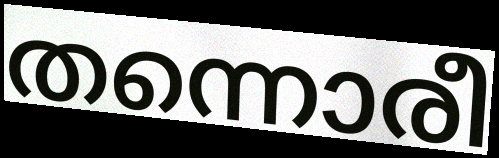
തന്നൊരീ